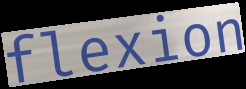
flexion